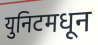
युनिटमधून